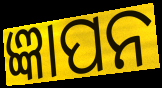
ଜ୍ଞାପନ